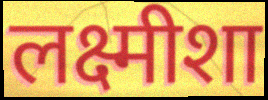
लक्ष्मीशा